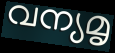
വന്യമൃ